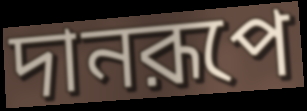
দানরূপে